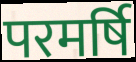
परमर्षि